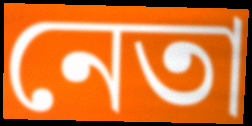
নেতা